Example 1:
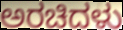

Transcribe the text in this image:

ಅರಚಿದಳು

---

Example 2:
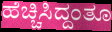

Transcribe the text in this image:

ಹೆಚ್ಚಿಸಿದ್ದಂತೂ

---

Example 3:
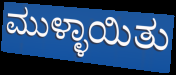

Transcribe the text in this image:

ಮುಳ್ಳಾಯಿತು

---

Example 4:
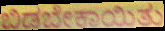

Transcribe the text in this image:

ಬಿಡಬೇಕಾಯಿತು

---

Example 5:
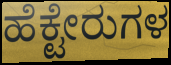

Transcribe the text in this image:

ಹೆಕ್ಟೇರುಗಳ